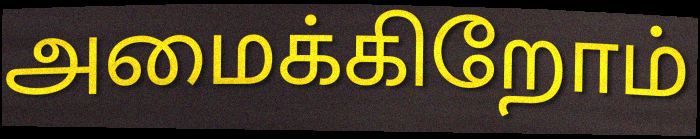
அமைக்கிறோம்